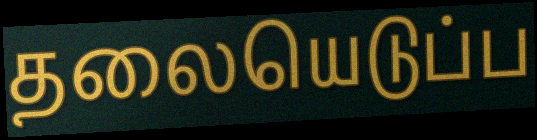
தலையெடுப்ப